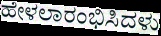
ಹೇಳಲಾರಂಭಿಸಿದಳು